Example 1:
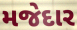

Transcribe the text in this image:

મજેદાર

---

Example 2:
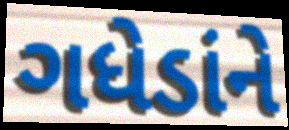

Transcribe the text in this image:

ગધેડાંને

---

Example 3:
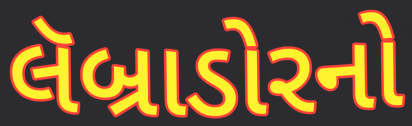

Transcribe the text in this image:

લૅબ્રાડોરનો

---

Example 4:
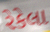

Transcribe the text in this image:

રેકેલા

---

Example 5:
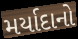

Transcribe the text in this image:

મર્યાદાનો